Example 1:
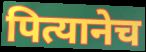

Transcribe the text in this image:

पित्यानेच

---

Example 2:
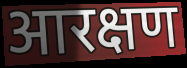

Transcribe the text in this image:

आरक्षण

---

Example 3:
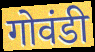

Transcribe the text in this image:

गोवंडी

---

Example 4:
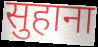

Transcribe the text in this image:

सुहाना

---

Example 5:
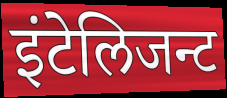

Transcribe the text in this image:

इंटेलिजन्ट